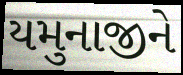
યમુનાજીને